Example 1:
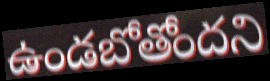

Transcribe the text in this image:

ఉండబోతోందని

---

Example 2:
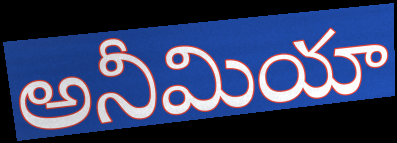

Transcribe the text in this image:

అనీమియా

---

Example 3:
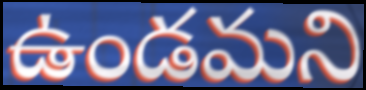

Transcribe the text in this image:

ఉండమని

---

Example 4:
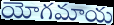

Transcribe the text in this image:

యోగమాయ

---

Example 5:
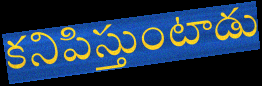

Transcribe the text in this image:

కనిపిస్తుంటాడు